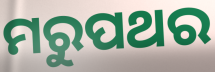
ମରୁପଥର